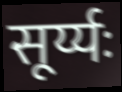
सूर्य्यः